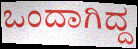
ಒಂದಾಗಿದ್ದ